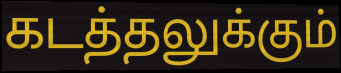
கடத்தலுக்கும்